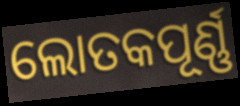
ଲୋତକପୂର୍ଣ୍ଣ